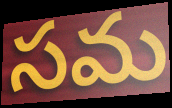
సమ